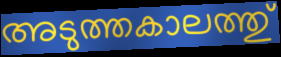
അടുത്തകാലത്തു്